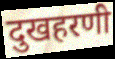
दुखहरणी